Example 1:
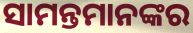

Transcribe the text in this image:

ସାମନ୍ତମାନଙ୍କର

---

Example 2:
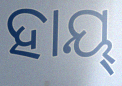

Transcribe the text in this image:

ହାୟ୍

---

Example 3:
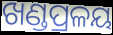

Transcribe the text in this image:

ଖଣ୍ଡପ୍ରଳୟ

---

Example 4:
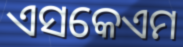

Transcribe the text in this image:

ଏସକେଏମ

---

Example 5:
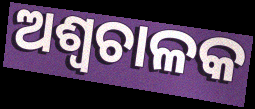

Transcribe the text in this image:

ଅଶ୍ୱଚାଳକ